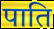
पाति